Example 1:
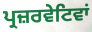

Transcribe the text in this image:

ਪ੍ਰਜ਼ਰਵੇਟਿਵਾਂ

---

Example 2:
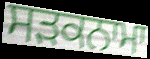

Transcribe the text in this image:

ਸਡ਼ਕਨਾਮਾ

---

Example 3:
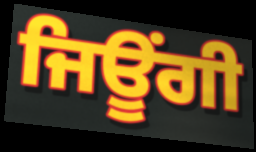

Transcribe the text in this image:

ਜਿਊਂਗੀ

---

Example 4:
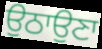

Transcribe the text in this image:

ਉਠਾਉਣਾ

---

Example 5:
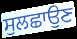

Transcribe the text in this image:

ਸੁਲਛਾਉਣ